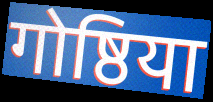
गोष्ठिया